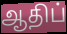
ஆதிப்